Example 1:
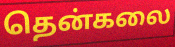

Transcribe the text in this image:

தென்கலை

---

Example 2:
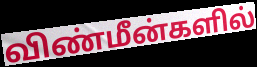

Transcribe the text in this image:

விண்மீன்களில்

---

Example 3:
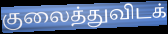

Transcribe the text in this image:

குலைத்துவிடக்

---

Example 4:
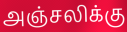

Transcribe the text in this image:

அஞ்சலிக்கு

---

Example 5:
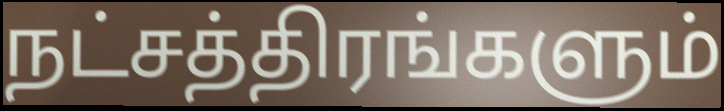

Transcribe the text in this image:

நட்சத்திரங்களும்